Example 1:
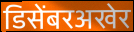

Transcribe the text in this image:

डिसेंबरअखेर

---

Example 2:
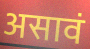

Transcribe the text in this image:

असावं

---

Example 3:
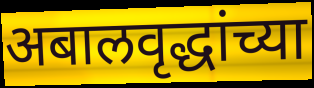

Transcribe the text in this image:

अबालवृद्धांच्या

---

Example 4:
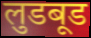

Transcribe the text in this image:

लुडबूड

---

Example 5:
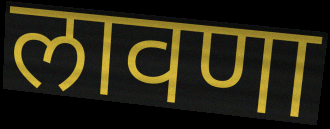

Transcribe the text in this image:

लावणा